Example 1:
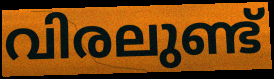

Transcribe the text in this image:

വിരലുണ്ട്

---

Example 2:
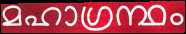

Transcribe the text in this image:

മഹാഗ്രന്ഥം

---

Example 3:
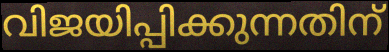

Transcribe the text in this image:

വിജയിപ്പിക്കുന്നതിന്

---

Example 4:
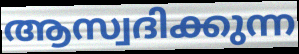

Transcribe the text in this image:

ആസ്വദിക്കുന്ന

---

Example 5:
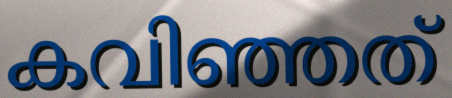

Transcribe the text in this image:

കവിഞ്ഞത്